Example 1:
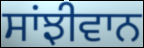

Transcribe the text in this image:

ਸਾਂਝੀਵਾਨ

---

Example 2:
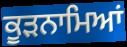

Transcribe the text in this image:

ਕੂੜਨਾਮਿਆਂ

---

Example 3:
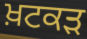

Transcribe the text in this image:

ਖ਼ਟਕੜ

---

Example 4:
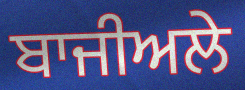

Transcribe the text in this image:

ਬਾਜੀਅਲੇ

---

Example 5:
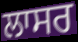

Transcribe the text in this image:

ਲਾਸਰ